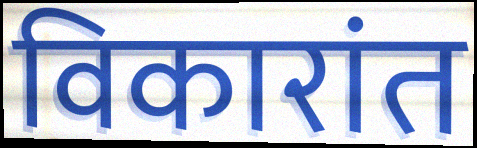
विकारांत